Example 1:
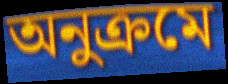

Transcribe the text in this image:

অনুক্ৰমে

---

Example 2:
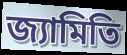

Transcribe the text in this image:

জ্যামিতি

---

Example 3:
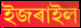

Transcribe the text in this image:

ইজৰাইল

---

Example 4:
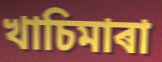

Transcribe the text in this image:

খাচিমাৰা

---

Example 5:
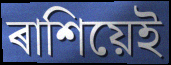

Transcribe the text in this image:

ৰাশিয়েই